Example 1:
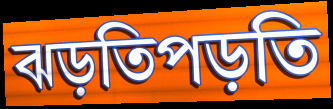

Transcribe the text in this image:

ঝড়তিপড়তি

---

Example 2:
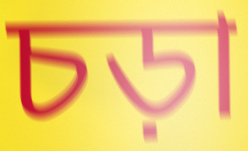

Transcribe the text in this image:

চড়া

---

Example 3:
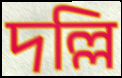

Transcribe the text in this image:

দল্লি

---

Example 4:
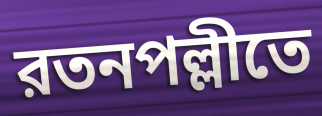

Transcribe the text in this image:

রতনপল্লীতে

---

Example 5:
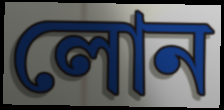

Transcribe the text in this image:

লোন